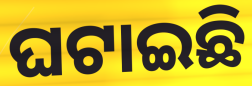
ଘଟାଇଛି